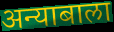
अन्याबाला